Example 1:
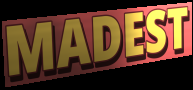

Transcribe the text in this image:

MADEST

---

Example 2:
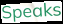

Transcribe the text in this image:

Speaks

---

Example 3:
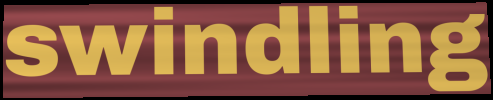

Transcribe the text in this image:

swindling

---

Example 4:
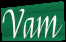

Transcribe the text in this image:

Vam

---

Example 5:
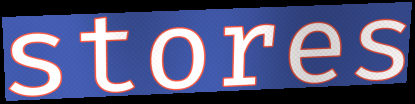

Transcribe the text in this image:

stores